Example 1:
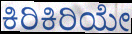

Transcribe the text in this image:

ಕಿರಿಕಿರಿಯೇ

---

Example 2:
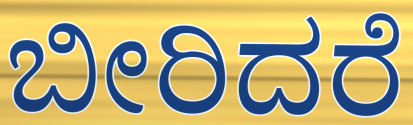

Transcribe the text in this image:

ಬೀರಿದರೆ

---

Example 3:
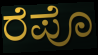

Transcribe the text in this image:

ರೆಪೊ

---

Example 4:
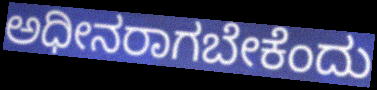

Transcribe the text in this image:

ಅಧೀನರಾಗಬೇಕೆಂದು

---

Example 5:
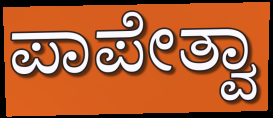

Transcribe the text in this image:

ಪಾಪೇತ್ವಾ